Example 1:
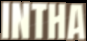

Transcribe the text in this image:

INTHA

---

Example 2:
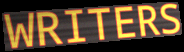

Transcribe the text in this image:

WRITERS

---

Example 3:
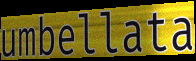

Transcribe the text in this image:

umbellata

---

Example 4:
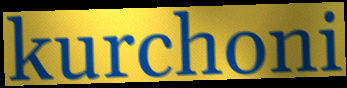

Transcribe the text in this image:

kurchoni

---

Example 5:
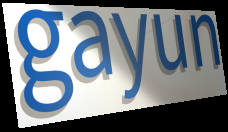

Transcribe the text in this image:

gayun